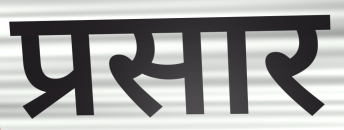
प्रसार